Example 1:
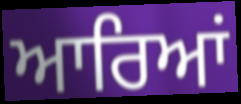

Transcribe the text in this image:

ਆਰਿਆਂ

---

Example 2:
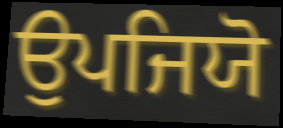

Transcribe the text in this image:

ਉਪਜਿਯੋ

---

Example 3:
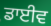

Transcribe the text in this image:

ਡਾਈਵ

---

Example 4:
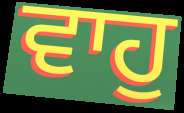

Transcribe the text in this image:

ਵਾਹੁ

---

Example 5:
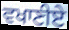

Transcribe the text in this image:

ਵਖਾਣੀਏ